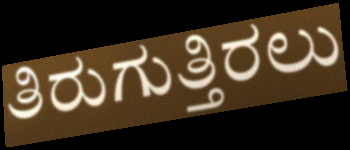
ತಿರುಗುತ್ತಿರಲು